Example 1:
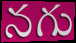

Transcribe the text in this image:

నగు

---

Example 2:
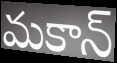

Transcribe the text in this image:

మకాన్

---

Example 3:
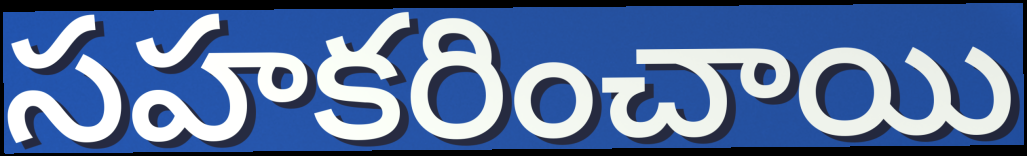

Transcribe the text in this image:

సహకరించాయి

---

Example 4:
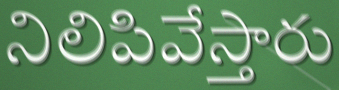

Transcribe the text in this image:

నిలిపివేస్తారు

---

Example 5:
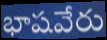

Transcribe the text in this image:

భాషవేరు